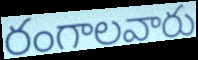
రంగాలవారు